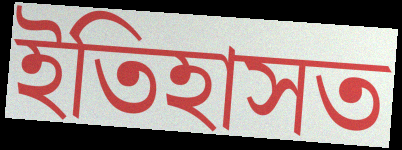
ইতিহাসত